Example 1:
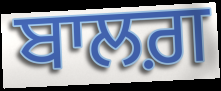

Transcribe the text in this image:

ਬਾਲਗ਼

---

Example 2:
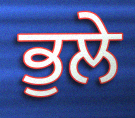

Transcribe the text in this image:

ਭੁਲੇ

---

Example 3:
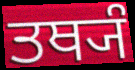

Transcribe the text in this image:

ਤਥ੍ਯੰ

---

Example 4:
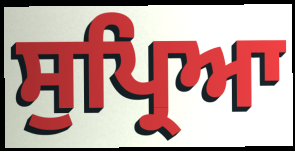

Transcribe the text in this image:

ਸੁਪ੍ਰਿਆ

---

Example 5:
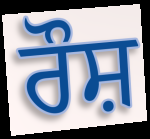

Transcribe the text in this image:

ਰੌਸ਼